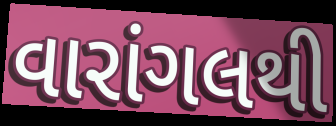
વારાંગલથી